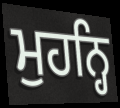
ਮੁਹਨ੍ਹ੍ਹਿ